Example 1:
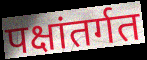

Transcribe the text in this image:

पक्षांतर्गत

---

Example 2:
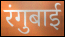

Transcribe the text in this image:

रंगुबाई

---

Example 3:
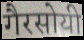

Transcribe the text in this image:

गैरसोयी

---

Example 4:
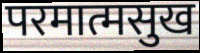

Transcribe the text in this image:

परमात्मसुख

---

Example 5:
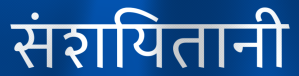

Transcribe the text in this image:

संशयितानी